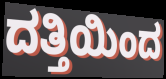
ದತ್ತಿಯಿಂದ